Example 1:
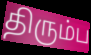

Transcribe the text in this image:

திரும்ப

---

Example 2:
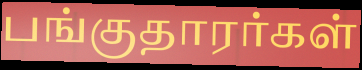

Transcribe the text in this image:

பங்குதாரர்கள்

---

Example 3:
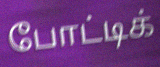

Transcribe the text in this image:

போட்டிக்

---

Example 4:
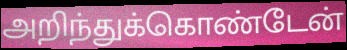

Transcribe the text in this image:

அறிந்துக்கொண்டேன்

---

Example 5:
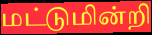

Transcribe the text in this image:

மட்டுமின்றி